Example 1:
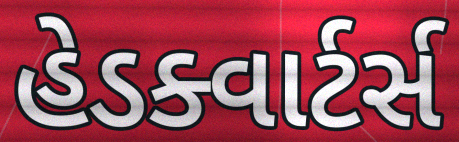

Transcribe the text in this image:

હેડક્વાર્ટર્સ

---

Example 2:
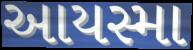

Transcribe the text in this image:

આયસ્મા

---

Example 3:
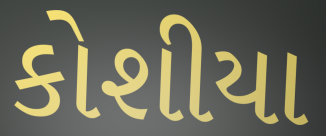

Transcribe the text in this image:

કોશીયા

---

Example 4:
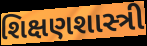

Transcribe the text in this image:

શિક્ષણશાસ્ત્રી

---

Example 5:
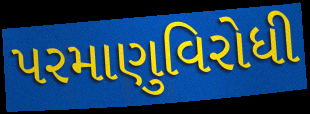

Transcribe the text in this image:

પરમાણુવિરોધી